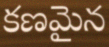
కణమైన